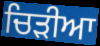
ਚਿੜੀਆ